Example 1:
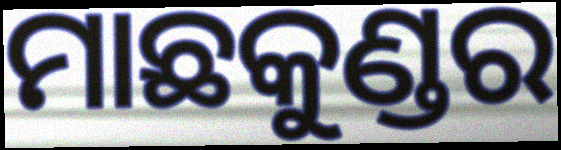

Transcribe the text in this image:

ମାଛକୁଣ୍ଡର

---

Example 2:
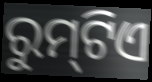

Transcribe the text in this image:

ରୁମ୍‌ଟିଏ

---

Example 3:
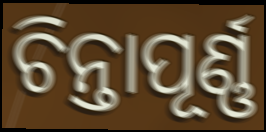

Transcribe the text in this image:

ଚିନ୍ତାପୂର୍ଣ୍ଣ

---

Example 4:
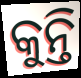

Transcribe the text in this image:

କୁନ୍ତି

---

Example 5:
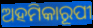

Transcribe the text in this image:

ଅହମିକାରୂପୀ